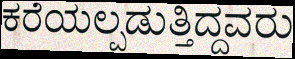
ಕರೆಯಲ್ಪಡುತ್ತಿದ್ದವರು